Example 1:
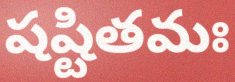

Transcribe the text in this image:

షష్టితమః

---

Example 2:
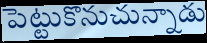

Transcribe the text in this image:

పెట్టుకొనుచున్నాడు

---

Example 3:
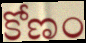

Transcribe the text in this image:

కోణం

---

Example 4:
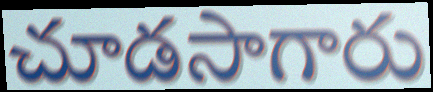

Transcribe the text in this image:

చూడసాగారు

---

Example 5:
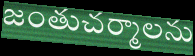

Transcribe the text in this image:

జంతుచర్మాలను